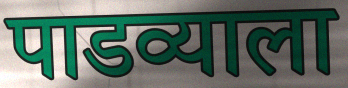
पाडव्याला